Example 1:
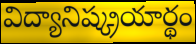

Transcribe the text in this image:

విద్యానిష్క్రయార్థం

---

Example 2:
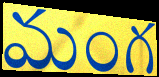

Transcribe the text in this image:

మంగ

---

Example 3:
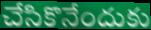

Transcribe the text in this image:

చేసికొనేందుకు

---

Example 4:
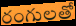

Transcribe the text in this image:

రంగులతో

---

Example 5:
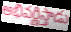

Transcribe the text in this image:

అభివర్ణిస్తాడు